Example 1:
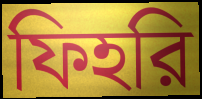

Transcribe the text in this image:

ফিহরি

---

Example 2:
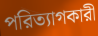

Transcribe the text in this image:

পরিত্যাগকারী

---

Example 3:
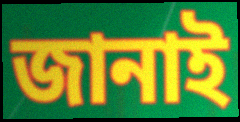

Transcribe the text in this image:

জানাই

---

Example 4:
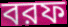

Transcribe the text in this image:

বরফ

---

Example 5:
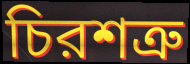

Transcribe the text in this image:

চিরশত্রু